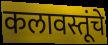
कलावस्तूंचे